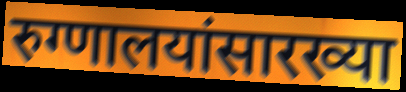
रुग्णालयांसारख्या